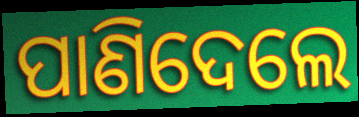
ପାଣିଦେଲେ